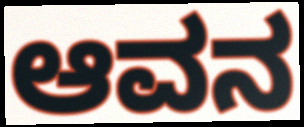
ಆವನ